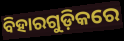
ବିହାରଗୁଡ଼ିକରେ